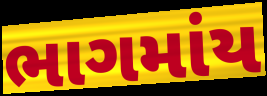
ભાગમાંય